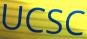
UCSC